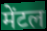
मेंटल